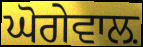
ਘੋਗੇਵਾਲ਼